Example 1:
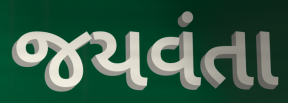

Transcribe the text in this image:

જયવંતા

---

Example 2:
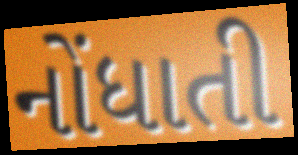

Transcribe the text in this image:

નોંધાતી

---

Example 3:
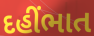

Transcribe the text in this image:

દહીંભાત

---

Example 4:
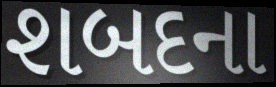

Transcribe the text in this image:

શબદના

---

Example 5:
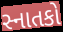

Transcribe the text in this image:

સ્નાતકો